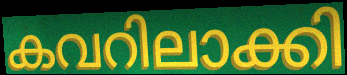
കവറിലാക്കി